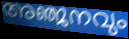
അഞ്ജനവും